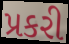
પ્રકરી